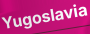
Yugoslavia